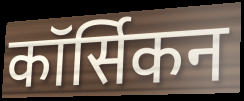
कॉर्सिकन